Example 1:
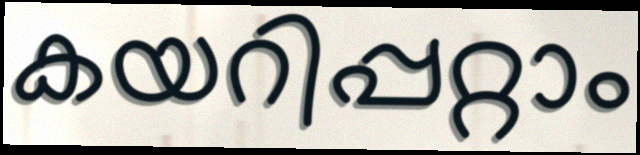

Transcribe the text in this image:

കയറിപ്പറ്റാം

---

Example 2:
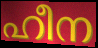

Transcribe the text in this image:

ഹീന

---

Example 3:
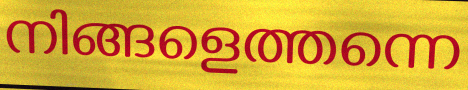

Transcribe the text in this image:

നിങ്ങളെത്തന്നെ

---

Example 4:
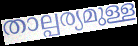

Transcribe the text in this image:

താല്പര്യമുള്ള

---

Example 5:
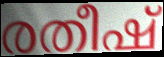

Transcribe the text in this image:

രതീഷ്